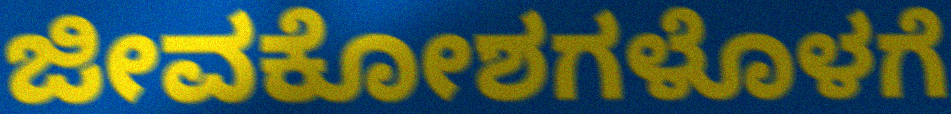
ಜೀವಕೋಶಗಳೊಳಗೆ